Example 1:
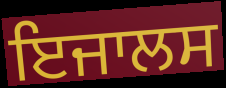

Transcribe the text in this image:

ਇਜਾਲਸ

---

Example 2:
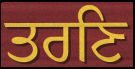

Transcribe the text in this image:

ਤਰਣਿ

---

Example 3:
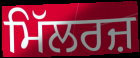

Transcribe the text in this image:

ਮਿੱਲਰਜ਼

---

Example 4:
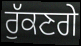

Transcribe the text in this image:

ਰੁੱਕਣਗੇ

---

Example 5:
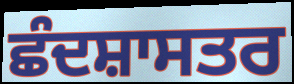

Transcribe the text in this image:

ਛੰਦਸ਼ਾਸਤਰ